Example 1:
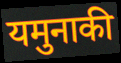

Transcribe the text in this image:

यमुनाकी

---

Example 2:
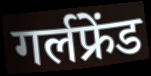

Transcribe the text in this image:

गर्लफ्रेंड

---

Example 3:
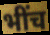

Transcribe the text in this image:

भींच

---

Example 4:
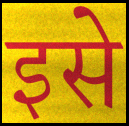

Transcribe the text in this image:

इसे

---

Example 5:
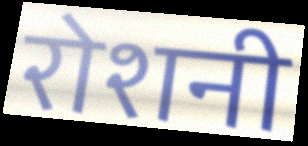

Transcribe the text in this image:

रोशनी